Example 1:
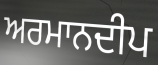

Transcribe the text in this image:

ਅਰਮਾਨਦੀਪ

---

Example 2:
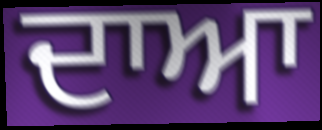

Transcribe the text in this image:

ਦਾਆ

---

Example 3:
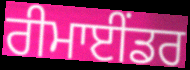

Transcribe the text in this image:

ਰੀਮਾਈਂਡਰ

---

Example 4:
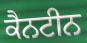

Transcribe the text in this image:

ਕੈਨਟੀਨ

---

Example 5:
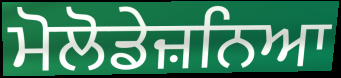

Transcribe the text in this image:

ਮੋਲੋਡੇਜ਼ਨਿਆ